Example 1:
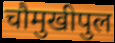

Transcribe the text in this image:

चौमुखीपुल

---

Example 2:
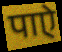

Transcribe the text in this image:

पाऐ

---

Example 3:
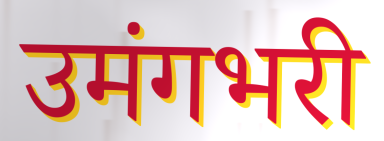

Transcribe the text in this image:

उमंगभरी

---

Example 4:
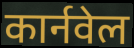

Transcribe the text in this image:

कार्नवेल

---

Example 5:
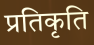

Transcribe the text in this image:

प्रतिकृति